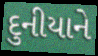
દુનીયાને